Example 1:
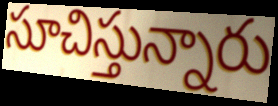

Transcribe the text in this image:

సూచిస్తున్నారు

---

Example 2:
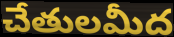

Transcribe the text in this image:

చేతులమీద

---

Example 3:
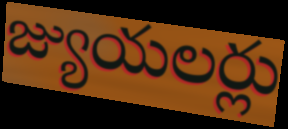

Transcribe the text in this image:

జ్యుయలర్లు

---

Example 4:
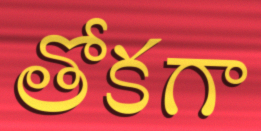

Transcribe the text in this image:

తోకగా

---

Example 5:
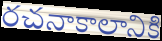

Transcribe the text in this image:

రచనాకాలానికి